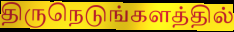
திருநெடுங்களத்தில்